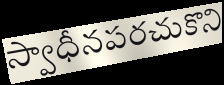
స్వాధీనపరచుకొని